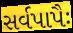
સર્વપાપૈઃ